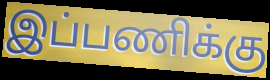
இப்பணிக்கு